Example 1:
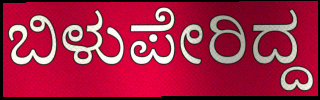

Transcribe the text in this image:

ಬಿಳುಪೇರಿದ್ದ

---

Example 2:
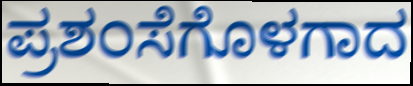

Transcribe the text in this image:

ಪ್ರಶಂಸೆಗೊಳಗಾದ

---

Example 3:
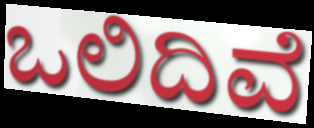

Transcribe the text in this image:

ಒಲಿದಿವೆ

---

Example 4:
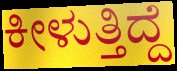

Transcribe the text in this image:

ಕೀಳುತ್ತಿದ್ದೆ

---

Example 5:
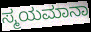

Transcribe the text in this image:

ಸ್ಮಯಮಾನಾ